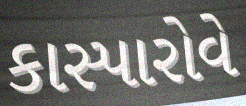
કાસ્પારોવે